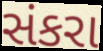
સંકરા